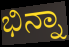
ಭಿನ್ನಾ